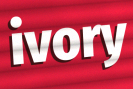
ivory